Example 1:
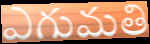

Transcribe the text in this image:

ఎగుమతి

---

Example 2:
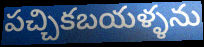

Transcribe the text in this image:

పచ్చికబయళ్ళను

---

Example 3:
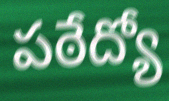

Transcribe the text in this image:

పఠేద్యో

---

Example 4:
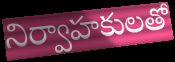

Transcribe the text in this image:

నిర్వాహకులతో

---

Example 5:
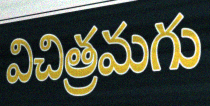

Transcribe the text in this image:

విచిత్రమగు